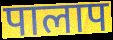
पालाप